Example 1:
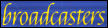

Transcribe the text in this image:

broadcasters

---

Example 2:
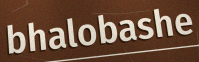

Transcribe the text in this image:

bhalobashe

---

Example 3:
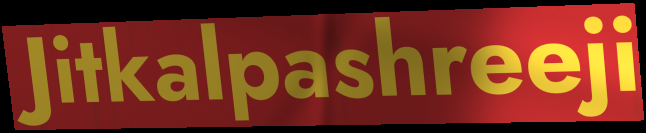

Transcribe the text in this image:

Jitkalpashreeji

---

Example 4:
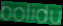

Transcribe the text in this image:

bolidu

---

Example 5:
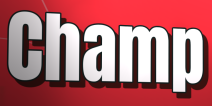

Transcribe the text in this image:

Champ